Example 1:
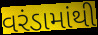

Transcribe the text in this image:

વરંડામાંથી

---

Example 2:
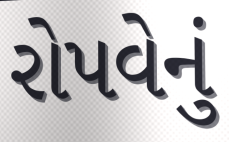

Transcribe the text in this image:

રોપવેનું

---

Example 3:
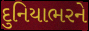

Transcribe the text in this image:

દુનિયાભરને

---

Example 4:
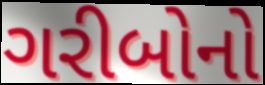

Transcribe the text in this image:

ગરીબોનો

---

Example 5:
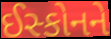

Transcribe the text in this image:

ઈસ્કોનને